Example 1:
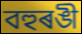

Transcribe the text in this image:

বহুৰঙী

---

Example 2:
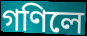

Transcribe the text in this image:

গণিলে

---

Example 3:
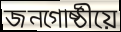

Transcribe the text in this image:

জনগোষ্ঠীয়ে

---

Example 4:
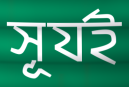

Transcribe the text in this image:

সূৰ্যই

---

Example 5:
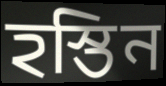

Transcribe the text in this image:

হস্তিন